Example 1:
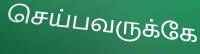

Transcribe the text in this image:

செய்பவருக்கே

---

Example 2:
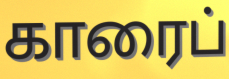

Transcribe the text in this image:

காரைப்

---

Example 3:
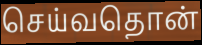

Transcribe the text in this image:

செய்வதொன்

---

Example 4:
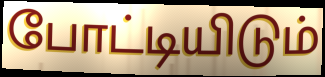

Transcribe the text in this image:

போட்டியிடும்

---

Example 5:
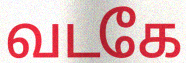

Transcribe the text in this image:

வடகே